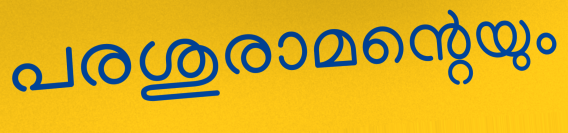
പരശുരാമന്റെയും